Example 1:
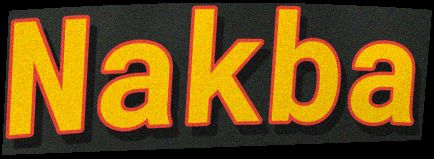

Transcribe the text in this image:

Nakba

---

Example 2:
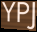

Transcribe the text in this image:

YPJ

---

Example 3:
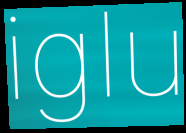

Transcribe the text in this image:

iglu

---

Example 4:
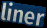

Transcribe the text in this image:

liner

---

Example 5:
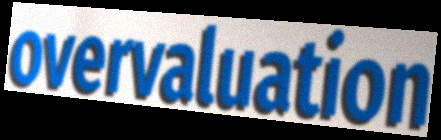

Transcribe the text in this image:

overvaluation